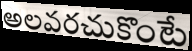
అలవరచుకొంటే